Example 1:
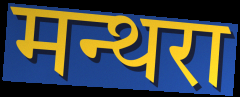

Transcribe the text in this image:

मन्थरा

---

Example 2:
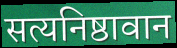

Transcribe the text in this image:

सत्यनिष्ठावान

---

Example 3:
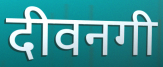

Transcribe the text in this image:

दीवनगी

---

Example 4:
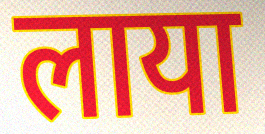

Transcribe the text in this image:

लाया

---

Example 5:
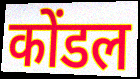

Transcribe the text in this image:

कोंडल